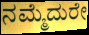
ನಮ್ಮೆದುರೇ